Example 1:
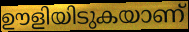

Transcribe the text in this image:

ഊളിയിടുകയാണ്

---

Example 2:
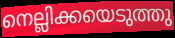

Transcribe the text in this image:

നെല്ലിക്കയെടുത്തു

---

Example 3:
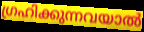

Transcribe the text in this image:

ഗ്രഹിക്കുന്നവയാൽ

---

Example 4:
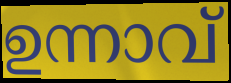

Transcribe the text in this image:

ഉന്നാവ്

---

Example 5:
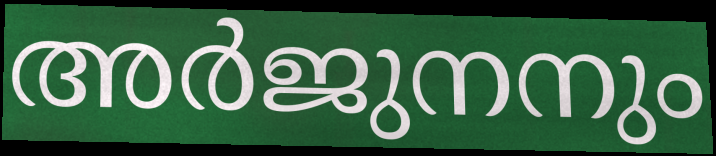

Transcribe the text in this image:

അർജുനനും